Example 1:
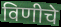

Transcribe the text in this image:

विणीचे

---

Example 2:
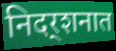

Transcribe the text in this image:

निदर्शनात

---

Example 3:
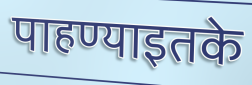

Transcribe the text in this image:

पाहण्याइतके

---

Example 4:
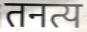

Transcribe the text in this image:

तनत्य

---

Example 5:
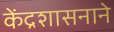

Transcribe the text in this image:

केंद्रशासनाने